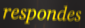
respondes